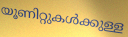
യൂണിറ്റുകൾക്കുള്ള